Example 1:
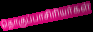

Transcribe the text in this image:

தொகுப்பாசிரியர்கள்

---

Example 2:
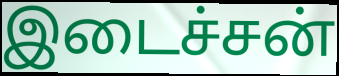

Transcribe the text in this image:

இடைச்சன்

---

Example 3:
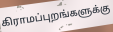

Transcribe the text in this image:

கிராமப்புறங்களுக்கு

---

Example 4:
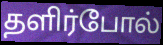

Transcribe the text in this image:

தளிர்போல்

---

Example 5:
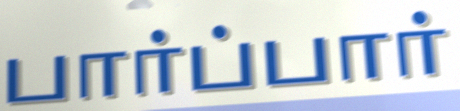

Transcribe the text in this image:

பார்ப்பார்